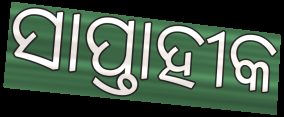
ସାପ୍ତାହୀକ